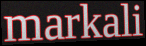
markali